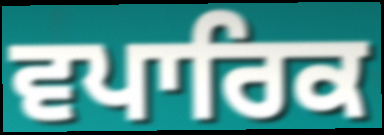
ਵਪਾਰਿਕ